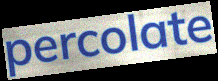
percolate